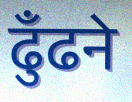
ढुँढने